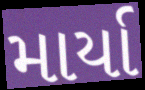
માર્યા